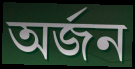
অর্জন